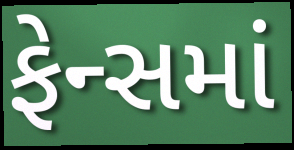
ફેન્સમાં